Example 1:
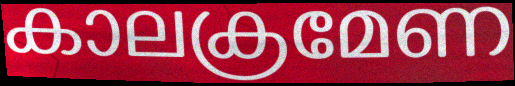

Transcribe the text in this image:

കാലക്രമേണ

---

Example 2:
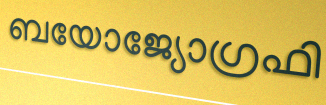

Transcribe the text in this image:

ബയോജ്യോഗ്രഫി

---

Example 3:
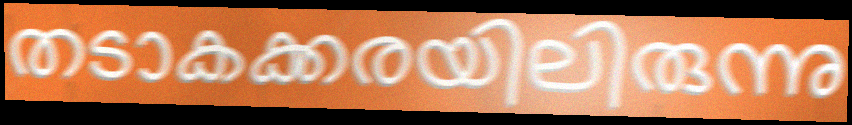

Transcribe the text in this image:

തടാകക്കരയിലിരുന്നു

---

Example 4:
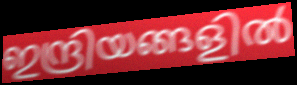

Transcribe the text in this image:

ഇന്ദ്രിയങ്ങളിൽ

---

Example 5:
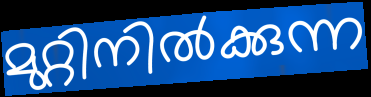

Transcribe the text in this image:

മുറ്റിനിൽക്കുന്ന